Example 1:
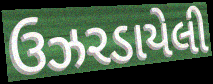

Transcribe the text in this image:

ઉઝરડાયેલી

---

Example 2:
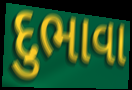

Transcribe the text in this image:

દુભાવા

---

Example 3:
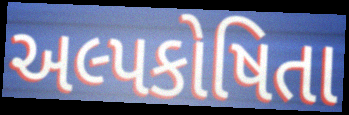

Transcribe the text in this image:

અલ્પકોષિતા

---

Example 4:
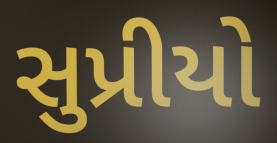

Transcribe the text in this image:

સુપ્રીયો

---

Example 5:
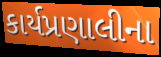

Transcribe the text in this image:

કાર્યપ્રણાલીના